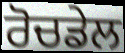
ਰੋਚਡੇਲ